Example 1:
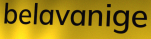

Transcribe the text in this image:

belavanige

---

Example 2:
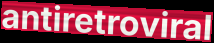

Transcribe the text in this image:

antiretroviral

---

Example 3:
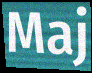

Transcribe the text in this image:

Maj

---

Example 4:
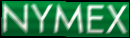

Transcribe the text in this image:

NYMEX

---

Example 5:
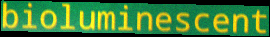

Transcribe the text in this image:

bioluminescent